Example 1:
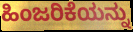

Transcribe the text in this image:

ಹಿಂಜರಿಕೆಯನ್ನು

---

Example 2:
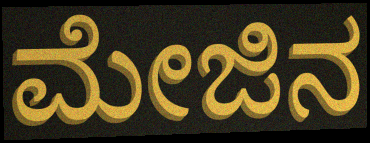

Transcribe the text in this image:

ಮೇಜಿನ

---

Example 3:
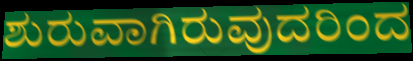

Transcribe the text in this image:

ಶುರುವಾಗಿರುವುದರಿಂದ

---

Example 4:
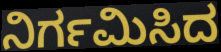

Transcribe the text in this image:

ನಿರ್ಗಮಿಸಿದ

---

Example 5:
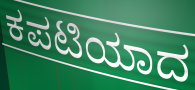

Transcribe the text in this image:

ಕಪಟಿಯಾದ